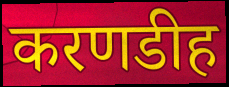
करणडीह